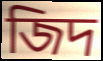
জিদ